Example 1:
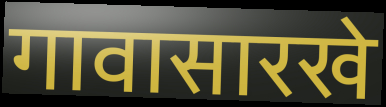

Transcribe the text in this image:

गावासारखे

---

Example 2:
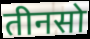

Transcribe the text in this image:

तीनसो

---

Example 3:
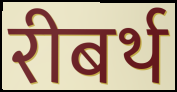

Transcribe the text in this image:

रीबर्थ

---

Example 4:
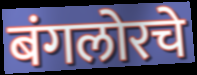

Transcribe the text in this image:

बंगलोरचे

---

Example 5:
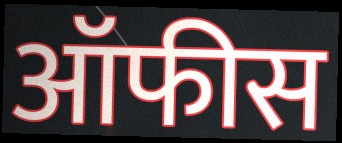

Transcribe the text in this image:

ऑफीस